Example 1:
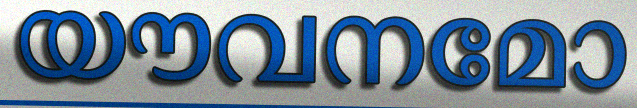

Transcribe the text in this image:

യൗവനമോ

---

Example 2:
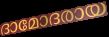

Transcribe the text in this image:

ദാമോദരായ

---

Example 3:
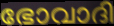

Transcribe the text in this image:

ഭോവാദി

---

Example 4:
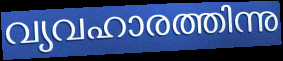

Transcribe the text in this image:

വ്യവഹാരത്തിന്നു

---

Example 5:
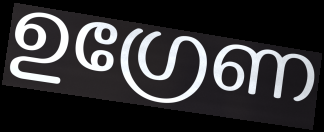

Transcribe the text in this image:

ഉഗ്രേണ